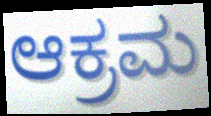
ಆಕ್ರಮ